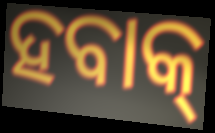
ହବାକ୍